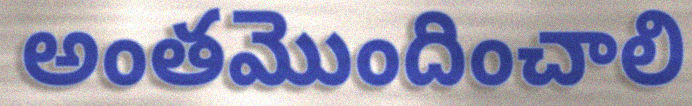
అంతమొందించాలి